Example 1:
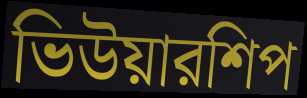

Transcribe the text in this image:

ভিউয়ারশিপ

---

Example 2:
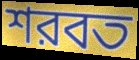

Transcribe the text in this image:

শরবত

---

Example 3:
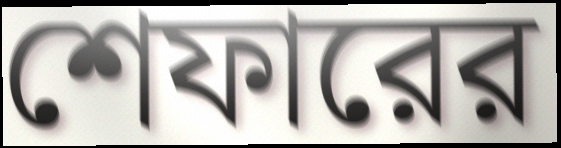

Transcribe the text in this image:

শেফারের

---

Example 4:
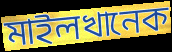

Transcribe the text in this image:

মাইলখানেক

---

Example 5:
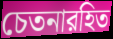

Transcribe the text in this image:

চেতনারহিত